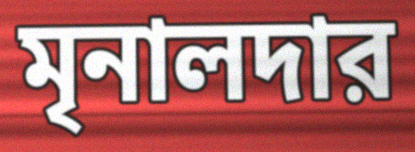
মৃনালদার